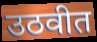
उठवीत